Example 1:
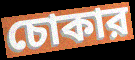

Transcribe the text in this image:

চোকার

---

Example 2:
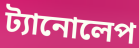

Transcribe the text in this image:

ট্যানোলেপ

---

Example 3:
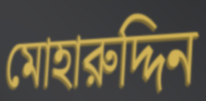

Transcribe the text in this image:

মোহারুদ্দিন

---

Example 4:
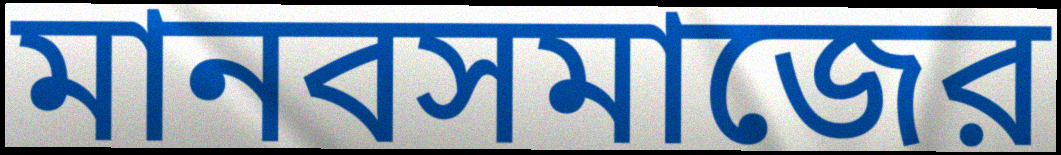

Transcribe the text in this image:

মানবসমাজের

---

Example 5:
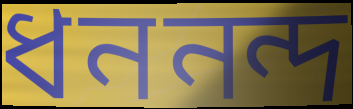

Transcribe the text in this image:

ধননন্দ